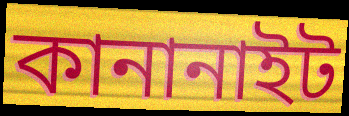
কানানাইট